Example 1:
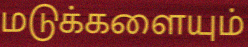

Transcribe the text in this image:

மடுக்களையும்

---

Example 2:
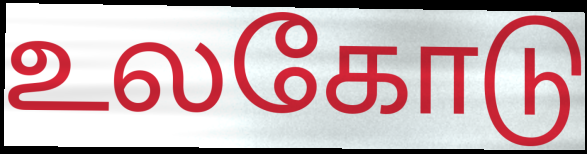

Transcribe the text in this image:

உலகோடு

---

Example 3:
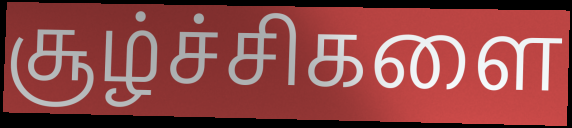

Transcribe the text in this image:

சூழ்ச்சிகளை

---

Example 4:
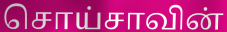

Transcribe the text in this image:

சொய்சாவின்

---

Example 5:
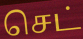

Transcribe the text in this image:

செட்